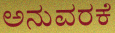
ಅನುವರಕೆ